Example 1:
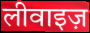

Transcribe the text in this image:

लीवाइज़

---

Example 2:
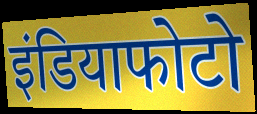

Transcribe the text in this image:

इंडियाफोटो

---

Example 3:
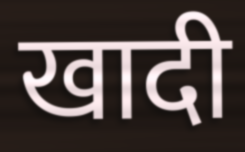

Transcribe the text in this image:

खादी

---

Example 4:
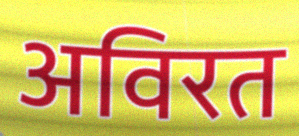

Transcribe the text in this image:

अविरत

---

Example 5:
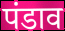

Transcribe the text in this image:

पंडाव